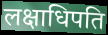
लक्षाधिपति